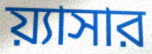
য়্যাসার